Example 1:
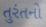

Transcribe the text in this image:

તુરંતનો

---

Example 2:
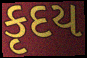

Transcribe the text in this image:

કૃદય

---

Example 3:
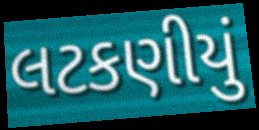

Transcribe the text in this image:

લટકણીયું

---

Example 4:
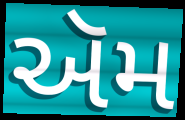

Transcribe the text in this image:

ઍમ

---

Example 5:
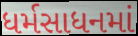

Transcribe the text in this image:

ધર્મસાધનમાં